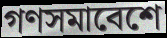
গণসমাবেশে